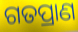
ଗତପ୍ରାଣ